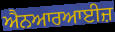
ਐਨਆਰਆਈਜ਼